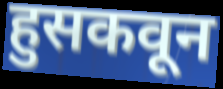
हुसकवून